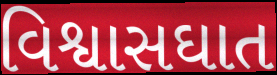
વિશ્વાસઘાત